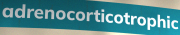
adrenocorticotrophic